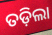
ତଡ଼ିଲା